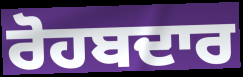
ਰੋਹਬਦਾਰ